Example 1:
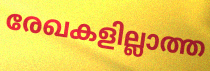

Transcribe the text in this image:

രേഖകളില്ലാത്ത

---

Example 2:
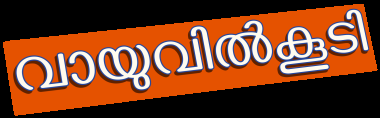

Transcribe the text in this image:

വായുവിൽകൂടി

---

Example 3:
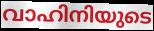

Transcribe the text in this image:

വാഹിനിയുടെ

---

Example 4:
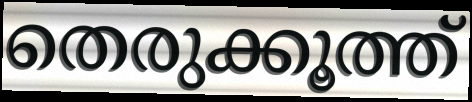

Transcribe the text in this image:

തെരുക്കൂത്ത്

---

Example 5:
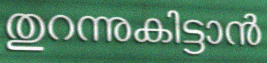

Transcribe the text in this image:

തുറന്നുകിട്ടാൻ